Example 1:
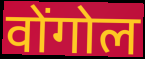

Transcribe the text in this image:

वोंगोल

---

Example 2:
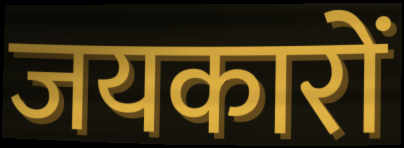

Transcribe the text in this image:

जयकारों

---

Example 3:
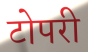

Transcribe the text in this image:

टोपरी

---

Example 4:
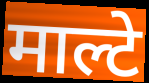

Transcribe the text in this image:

माल्टे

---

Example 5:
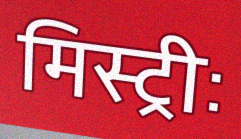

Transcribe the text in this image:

मिस्ट्रीः